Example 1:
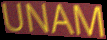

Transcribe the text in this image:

UNAM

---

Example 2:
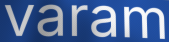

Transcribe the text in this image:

varam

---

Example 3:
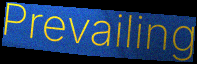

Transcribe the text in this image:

Prevailing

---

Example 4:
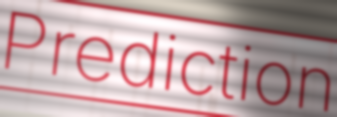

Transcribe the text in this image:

Prediction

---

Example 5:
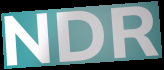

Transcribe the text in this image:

NDR